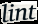
lint